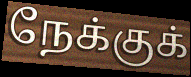
நேக்குக்